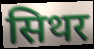
सिथर